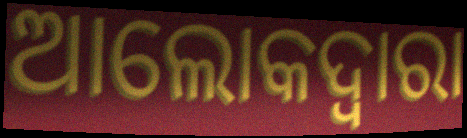
ଆଲୋକଦ୍ୱାରା